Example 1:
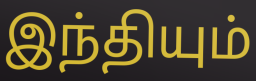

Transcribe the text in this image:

இந்தியும்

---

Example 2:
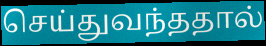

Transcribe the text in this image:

செய்துவந்ததால்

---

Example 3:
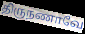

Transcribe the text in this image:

திருநணாவே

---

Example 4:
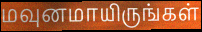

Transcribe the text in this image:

மவுனமாயிருங்கள்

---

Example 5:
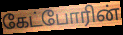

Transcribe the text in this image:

கேட்போரின்